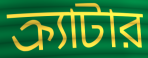
ক্র্যাটার